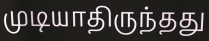
முடியாதிருந்தது